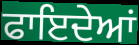
ਫਾਇਦੇਆਂ